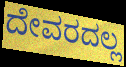
ದೇವರದಲ್ಲ